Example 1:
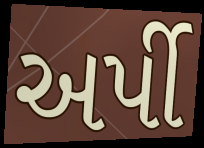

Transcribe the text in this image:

અર્પી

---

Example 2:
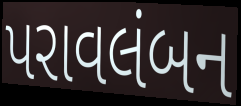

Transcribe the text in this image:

પરાવલંબન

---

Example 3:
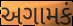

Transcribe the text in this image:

અગામકં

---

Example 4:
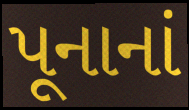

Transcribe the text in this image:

પૂનાનાં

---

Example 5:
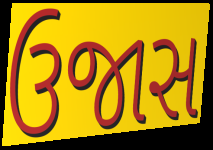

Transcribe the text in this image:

ઉજાસ